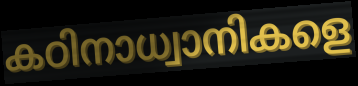
കഠിനാധ്വാനികളെ